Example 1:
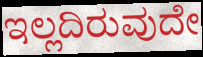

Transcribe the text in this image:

ಇಲ್ಲದಿರುವುದೇ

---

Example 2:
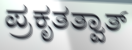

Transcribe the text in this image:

ಪ್ರಕೃತತ್ವಾತ್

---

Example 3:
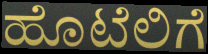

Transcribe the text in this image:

ಹೊಟೆಲಿಗೆ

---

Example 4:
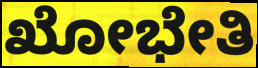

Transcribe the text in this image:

ಖೋಭೇತಿ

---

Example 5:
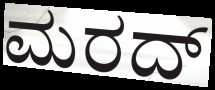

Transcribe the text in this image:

ಮರದ್